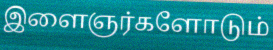
இளைஞர்களோடும்